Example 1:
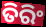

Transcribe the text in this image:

ତିରିଂ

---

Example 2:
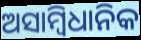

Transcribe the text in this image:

ଅସାମ୍ୱିଧାନିକ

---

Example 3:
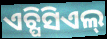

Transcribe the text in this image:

ଏଚ୍ପିସିଏଲ୍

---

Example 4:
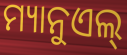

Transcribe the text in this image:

ମ୍ୟାନୁଏଲ୍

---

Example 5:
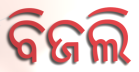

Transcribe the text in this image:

ବିଜଲି